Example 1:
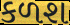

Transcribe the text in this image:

કળશ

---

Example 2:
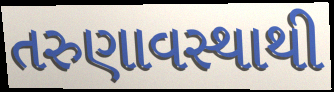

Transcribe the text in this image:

તરુણાવસ્થાથી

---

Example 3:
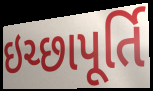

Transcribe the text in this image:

ઇચ્છાપૂર્તિ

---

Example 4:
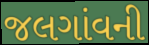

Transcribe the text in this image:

જલગાંવની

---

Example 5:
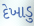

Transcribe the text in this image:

દેખાડુ